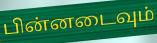
பின்னடைவும்